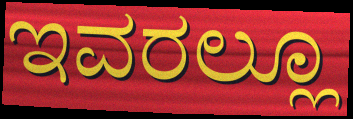
ಇವರಲ್ಲೂ